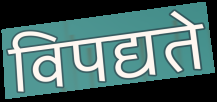
विपद्यते